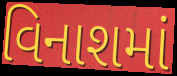
વિનાશમાં